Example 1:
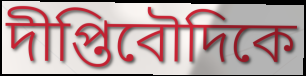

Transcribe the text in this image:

দীপ্তিবৌদিকে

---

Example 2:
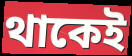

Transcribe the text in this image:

থাকেই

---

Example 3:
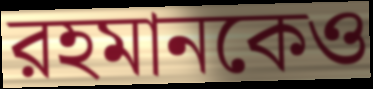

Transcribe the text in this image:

রহমানকেও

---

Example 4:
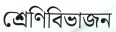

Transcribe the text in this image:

শ্রেণিবিভাজন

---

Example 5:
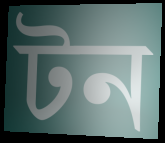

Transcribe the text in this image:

টন